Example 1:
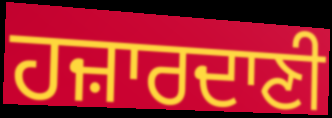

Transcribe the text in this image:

ਹਜ਼ਾਰਦਾਣੀ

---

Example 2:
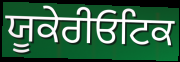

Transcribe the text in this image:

ਯੂਕੇਰੀਓਟਿਕ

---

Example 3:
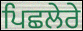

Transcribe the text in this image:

ਪਿਛਲੇਰੇ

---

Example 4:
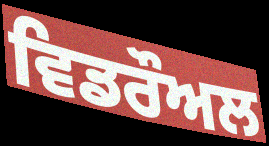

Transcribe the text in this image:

ਵਿਡਰੌਅਲ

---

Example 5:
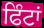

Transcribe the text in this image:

ਫਿੰਟਾਂ